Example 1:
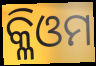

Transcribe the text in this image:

କ୍ଳିଓମ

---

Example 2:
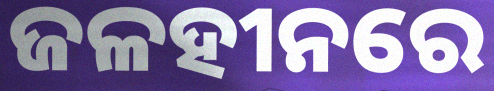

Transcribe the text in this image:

ଜଳହୀନରେ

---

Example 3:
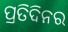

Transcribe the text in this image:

ପ୍ରତିଦିନର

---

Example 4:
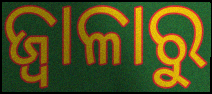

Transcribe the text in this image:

ଜ୍ଵାଳାରୁ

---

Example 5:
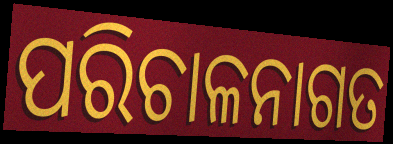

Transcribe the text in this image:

ପରିଚାଳନାଗତ